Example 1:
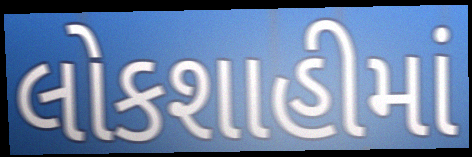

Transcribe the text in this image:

લોકશાહીમાં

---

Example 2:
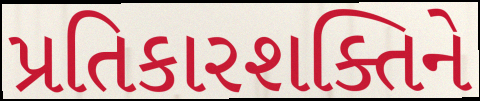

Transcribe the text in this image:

પ્રતિકારશક્તિને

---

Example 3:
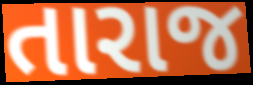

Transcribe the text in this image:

તારાજ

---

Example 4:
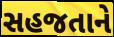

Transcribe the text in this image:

સહજતાને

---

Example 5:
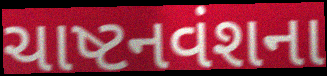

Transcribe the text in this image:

ચાષ્ટનવંશના